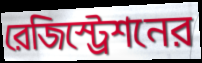
রেজিস্ট্রেশনের